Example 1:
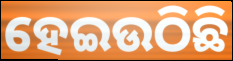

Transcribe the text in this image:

ହେଇଉଠିଛି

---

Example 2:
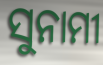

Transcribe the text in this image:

ସୁନାମୀ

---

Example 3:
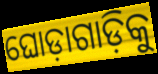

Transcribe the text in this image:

ଘୋଡ଼ାଗାଡ଼ିକୁ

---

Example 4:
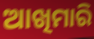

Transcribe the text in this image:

ଆଖିମାରି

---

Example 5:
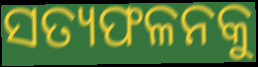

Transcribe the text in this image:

ସତ୍ୟଫଳନକୁ